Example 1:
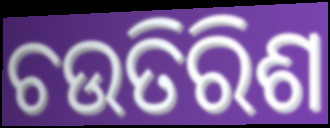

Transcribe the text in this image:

ଚଉତିରିଶ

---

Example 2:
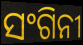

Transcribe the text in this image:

ସଂଗିନୀ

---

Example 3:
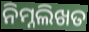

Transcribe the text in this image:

ନିମ୍ନଲିଖତ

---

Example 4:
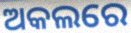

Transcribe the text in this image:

ଅକଲରେ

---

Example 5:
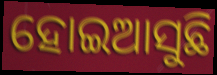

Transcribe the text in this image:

ହୋଇଆସୁଛି